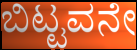
ಬಿಟ್ಟವನೇ